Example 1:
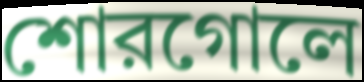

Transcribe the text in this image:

শোরগোলে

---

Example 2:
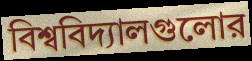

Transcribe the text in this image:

বিশ্ববিদ্যালগুলোর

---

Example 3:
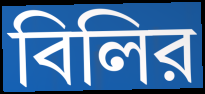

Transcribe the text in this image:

বিলির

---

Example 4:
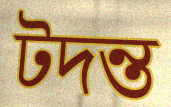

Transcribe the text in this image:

টদন্ত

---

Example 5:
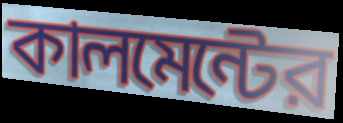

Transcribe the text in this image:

কালমেন্টের